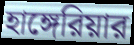
হাঙ্গেরিয়ার